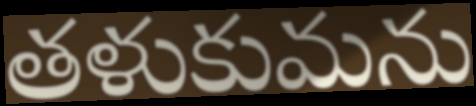
తళుకుమను